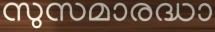
സുസമാരദ്ധാ